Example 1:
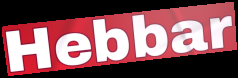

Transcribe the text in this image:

Hebbar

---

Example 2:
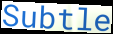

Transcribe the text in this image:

Subtle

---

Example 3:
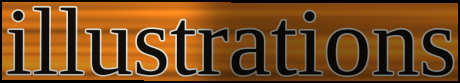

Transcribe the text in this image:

illustrations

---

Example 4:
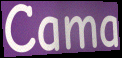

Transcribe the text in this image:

Cama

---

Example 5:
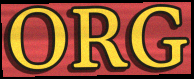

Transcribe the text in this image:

ORG